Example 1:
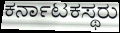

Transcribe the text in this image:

ಕರ್ನಾಟಕಸ್ಥರು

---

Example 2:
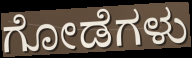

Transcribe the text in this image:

ಗೋಡೆಗಳು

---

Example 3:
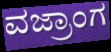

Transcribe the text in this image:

ವಜ್ರಾಂಗ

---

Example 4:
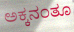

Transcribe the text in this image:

ಅಕ್ಕನಂತೂ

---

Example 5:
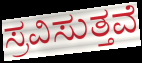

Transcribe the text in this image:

ಸ್ರವಿಸುತ್ತವೆ